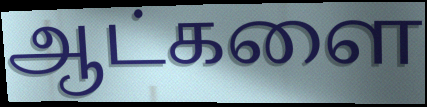
ஆட்களை